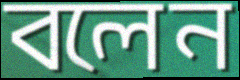
বলেন